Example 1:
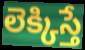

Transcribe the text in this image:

లెక్కిస్తే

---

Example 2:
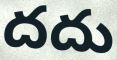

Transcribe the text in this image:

దదు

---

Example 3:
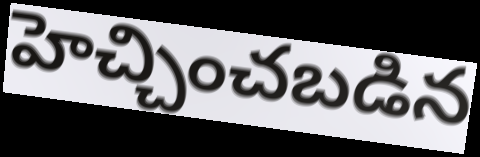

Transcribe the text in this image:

హెచ్చించబడిన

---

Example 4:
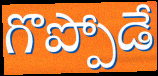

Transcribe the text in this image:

గొప్పోడే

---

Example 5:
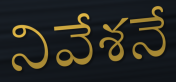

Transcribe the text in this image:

నివేశనే